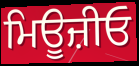
ਮਿਊਜ਼ੀਓ